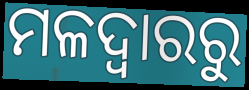
ମଳଦ୍ୱାରରୁ